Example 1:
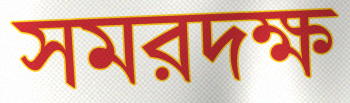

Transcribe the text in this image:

সমরদক্ষ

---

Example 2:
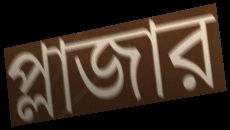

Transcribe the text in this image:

প্লাজার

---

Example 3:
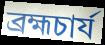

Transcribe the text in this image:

ব্রহ্মচার্য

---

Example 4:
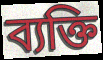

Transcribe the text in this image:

ব্যক্তি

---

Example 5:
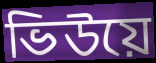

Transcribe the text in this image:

ভিউয়ে